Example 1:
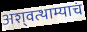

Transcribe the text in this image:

अश्वत्थाम्याचं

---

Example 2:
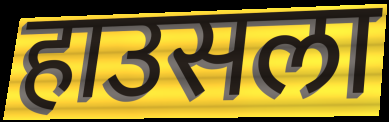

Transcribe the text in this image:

हाउसला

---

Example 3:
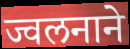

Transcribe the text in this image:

ज्वलनाने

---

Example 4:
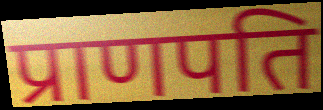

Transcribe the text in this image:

प्राणपति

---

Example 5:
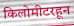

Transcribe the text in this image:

किलोमीटरहून